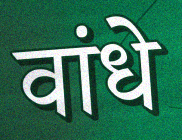
वांधे